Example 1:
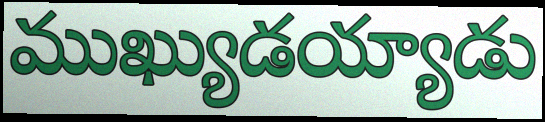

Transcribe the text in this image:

ముఖ్యుడయ్యాడు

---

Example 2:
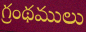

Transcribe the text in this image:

గ్రంథములు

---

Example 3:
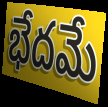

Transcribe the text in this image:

భేదమే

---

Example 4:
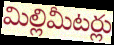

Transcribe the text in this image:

మిల్లిమీటర్లు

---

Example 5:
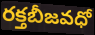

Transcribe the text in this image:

రక్తబీజవధో